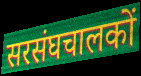
सरसंघचालकों